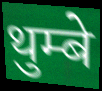
थुम्बे